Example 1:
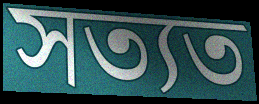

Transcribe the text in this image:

সত্যত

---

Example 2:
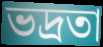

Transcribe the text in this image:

ভদ্ৰতা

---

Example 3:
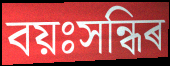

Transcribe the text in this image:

বয়ঃসন্ধিৰ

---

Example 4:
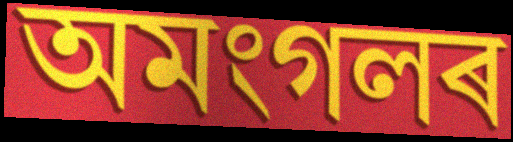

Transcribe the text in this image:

অমংগলৰ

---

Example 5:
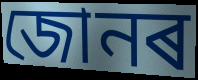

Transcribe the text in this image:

জোনৰ